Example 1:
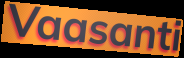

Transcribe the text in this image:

Vaasanti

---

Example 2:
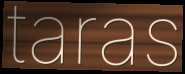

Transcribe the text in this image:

taras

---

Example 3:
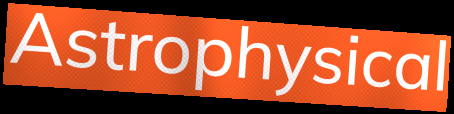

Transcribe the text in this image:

Astrophysical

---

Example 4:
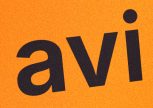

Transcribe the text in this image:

avi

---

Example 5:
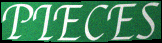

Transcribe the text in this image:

PIECES